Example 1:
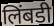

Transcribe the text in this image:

लिंबडी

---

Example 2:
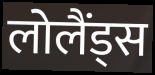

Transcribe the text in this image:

लोलैंड्स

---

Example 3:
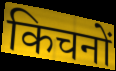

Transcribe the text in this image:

किचनों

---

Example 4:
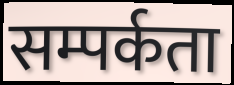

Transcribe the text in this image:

सम्पर्कता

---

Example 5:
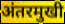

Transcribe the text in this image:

अंतरमुखी